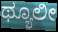
ಥ್ಯೂಲೀ